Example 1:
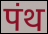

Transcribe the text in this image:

पंथ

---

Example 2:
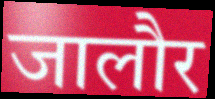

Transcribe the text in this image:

जालौर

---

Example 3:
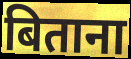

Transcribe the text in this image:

बिताना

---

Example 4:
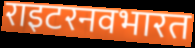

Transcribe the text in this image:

राइटरनवभारत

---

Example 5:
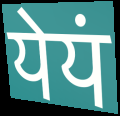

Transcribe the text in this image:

येयं